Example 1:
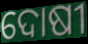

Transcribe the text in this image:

ଦୋଷୀ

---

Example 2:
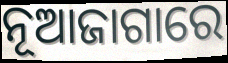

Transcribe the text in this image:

ନୂଆଜାଗାରେ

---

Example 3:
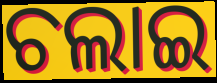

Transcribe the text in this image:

ଚଲାଇ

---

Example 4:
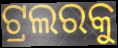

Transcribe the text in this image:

ଟ୍ରଲରକୁ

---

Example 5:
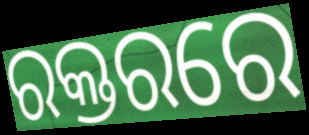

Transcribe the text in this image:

ରକ୍ତରରେ